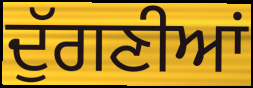
ਦੁੱਗਣੀਆਂ